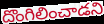
దొంగిలించాడని